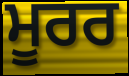
ਮੂਰਰ